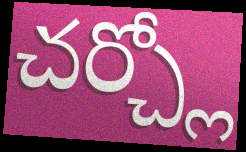
చర్చ్లో